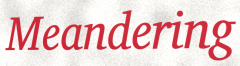
Meandering